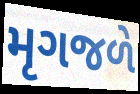
મૃગજળે